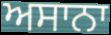
ਅਸਾਨਾ